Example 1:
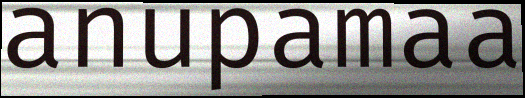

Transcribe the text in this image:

anupamaa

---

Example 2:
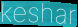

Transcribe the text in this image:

keshar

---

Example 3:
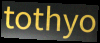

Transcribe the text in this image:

tothyo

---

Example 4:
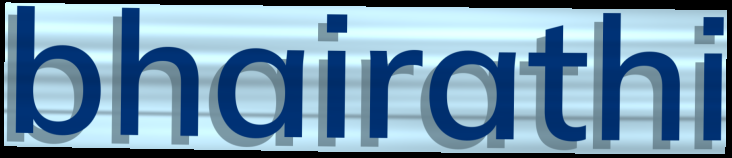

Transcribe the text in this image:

bhairathi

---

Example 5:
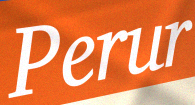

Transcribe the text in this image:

Perur